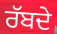
ਰੱਬਦੇ